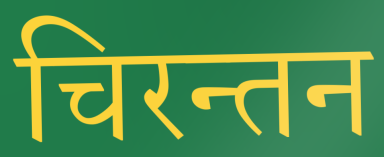
चिरन्तन